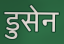
डुसेन